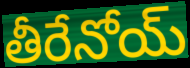
తీరేనోయ్